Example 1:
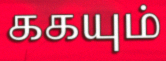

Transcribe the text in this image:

ககயும்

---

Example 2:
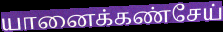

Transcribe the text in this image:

யானைக்கண்சேய்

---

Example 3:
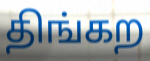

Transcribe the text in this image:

திங்கற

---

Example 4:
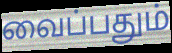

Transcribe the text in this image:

வைப்பதும்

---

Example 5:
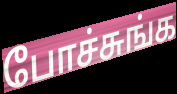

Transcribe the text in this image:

போச்சுங்க